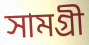
সামগ্ৰী